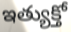
ఇత్యుక్తో